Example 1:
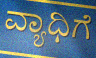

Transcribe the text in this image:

ವ್ಯಾಧಿಗೆ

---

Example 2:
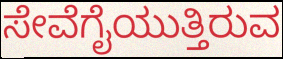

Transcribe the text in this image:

ಸೇವೆಗೈಯುತ್ತಿರುವ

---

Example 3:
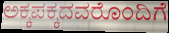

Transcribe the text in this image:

ಅಕ್ಕಪಕ್ಕದವರೊಂದಿಗೆ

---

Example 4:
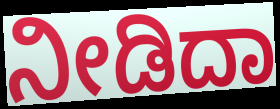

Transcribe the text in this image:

ನೀಡಿದಾ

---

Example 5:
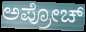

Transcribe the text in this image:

ಅಪ್ರೋಚ್